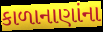
કાળાનાણાંના